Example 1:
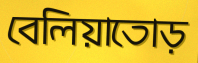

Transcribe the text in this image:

বেলিয়াতোড়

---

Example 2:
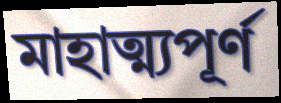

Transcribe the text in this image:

মাহাত্ম্যপূর্ণ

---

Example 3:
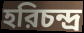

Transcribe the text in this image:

হরিচন্দ্র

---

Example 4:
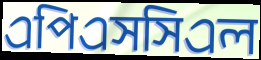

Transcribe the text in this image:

এপিএসসিএল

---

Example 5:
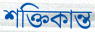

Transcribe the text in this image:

শক্তিকান্ত